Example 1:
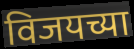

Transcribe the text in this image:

विजयच्या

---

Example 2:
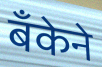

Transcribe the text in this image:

बँकेने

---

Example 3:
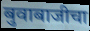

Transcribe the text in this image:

बुवाबाजीचा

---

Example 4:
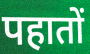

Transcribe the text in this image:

पहातों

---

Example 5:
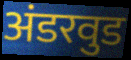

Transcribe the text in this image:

अंडरवुड